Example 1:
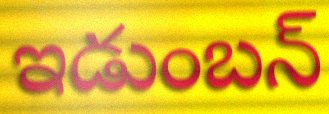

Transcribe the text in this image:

ఇడుంబన్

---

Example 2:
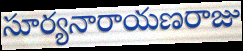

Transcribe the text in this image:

సూర్యనారాయణరాజు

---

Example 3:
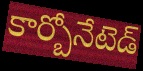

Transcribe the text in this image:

కార్బోనేటెడ్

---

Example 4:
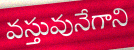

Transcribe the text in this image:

వస్తువునేగాని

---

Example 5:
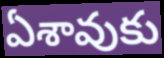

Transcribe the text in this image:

ఏశావుకు